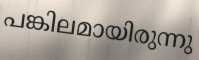
പങ്കിലമായിരുന്നു